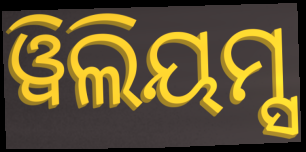
ୱିଲିୟମ୍ସ